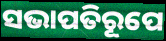
ସଭାପତିରୂପେ